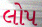
લોપ